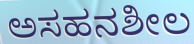
ಅಸಹನಶೀಲ